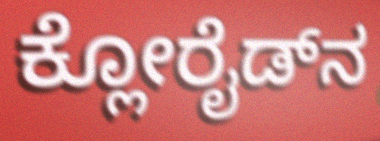
ಕ್ಲೋರೈಡ್‍ನ